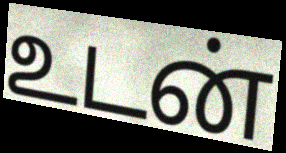
உடன்